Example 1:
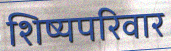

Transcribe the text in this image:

शिष्यपरिवार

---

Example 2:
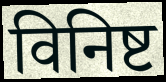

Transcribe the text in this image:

विनिष्ट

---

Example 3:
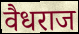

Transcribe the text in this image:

वैधराज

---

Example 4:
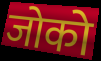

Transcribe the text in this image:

जोको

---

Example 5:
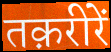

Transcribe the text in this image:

तक़रीरें